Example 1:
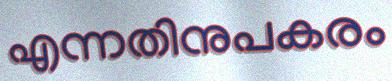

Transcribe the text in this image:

എന്നതിനുപകരം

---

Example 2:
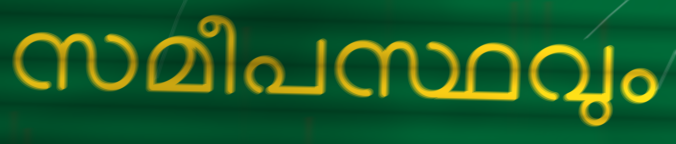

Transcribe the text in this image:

സമീപസ്ഥവും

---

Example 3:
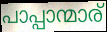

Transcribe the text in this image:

പാപ്പാന്മാര്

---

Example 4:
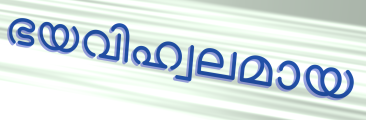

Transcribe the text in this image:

ഭയവിഹ്വലമായ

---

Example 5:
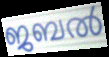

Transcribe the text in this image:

ജബൽ